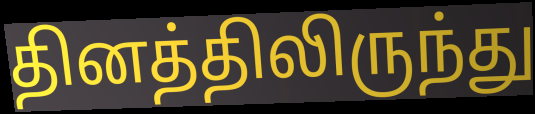
தினத்திலிருந்து